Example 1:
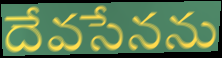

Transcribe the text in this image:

దేవసేనను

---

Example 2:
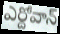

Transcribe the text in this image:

ఎర్దోవాన్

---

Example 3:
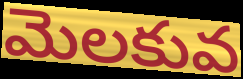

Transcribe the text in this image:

మెలకువ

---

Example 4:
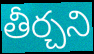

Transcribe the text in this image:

తీర్చని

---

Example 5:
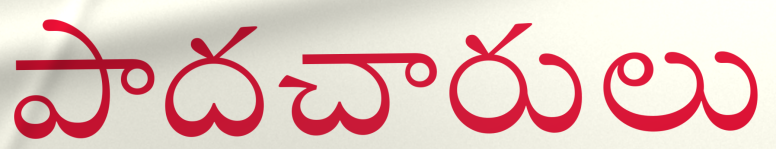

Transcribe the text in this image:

పాదచారులు